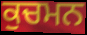
ਕੁਚਮਨ